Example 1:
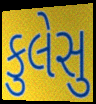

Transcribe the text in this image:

કુલેસુ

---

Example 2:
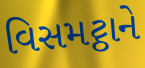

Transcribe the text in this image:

વિસમટ્ઠાને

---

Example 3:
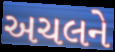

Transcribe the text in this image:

અચલને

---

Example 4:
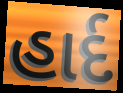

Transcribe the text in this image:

હાર્દ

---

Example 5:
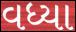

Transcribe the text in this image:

વધ્યા